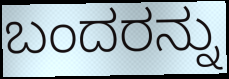
ಬಂದರನ್ನು